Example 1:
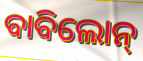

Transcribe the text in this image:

ବାବିଲୋନ୍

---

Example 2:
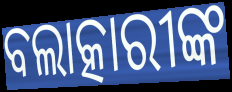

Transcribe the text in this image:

ବଲାତ୍କାରୀଙ୍କ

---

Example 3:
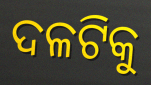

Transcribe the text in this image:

ଦଳଟିକୁ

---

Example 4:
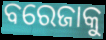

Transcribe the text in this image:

ବରେଜାକୁ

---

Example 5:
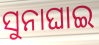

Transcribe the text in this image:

ସୁନାଘାଇ